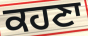
ਕਹਣਾ